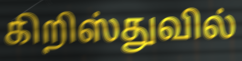
கிறிஸ்துவில்